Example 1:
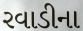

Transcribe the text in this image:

રવાડીના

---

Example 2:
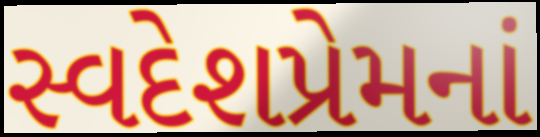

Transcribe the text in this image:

સ્વદેશપ્રેમનાં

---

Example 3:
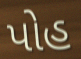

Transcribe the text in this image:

પોહ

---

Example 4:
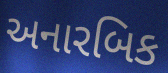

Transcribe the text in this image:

અનારબિક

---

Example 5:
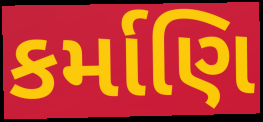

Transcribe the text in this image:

કર્માણિ